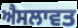
ਐਸਲਾਵਤ